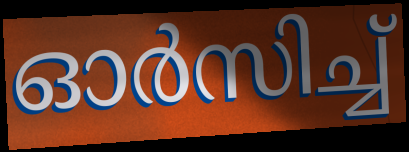
ഓർസിച്ച്